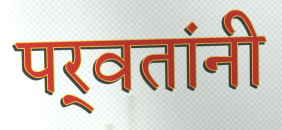
पर्वतांनी